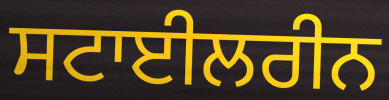
ਸਟਾਈਲਰੀਨ